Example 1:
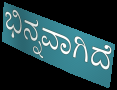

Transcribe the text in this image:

ಭಿನ್ನವಾಗಿದೆ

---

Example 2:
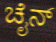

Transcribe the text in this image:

ಚೈನ್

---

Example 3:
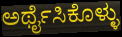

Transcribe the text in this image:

ಅರ್ಥೈಸಿಕೊಳ್ಳು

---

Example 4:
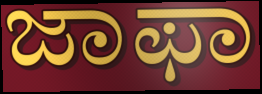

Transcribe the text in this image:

ಜಾಫಾ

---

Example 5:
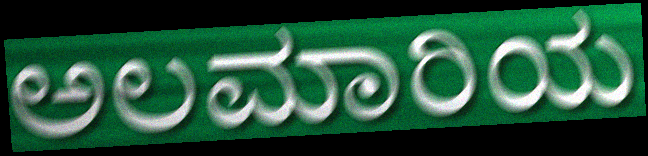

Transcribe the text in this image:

ಅಲಮಾರಿಯ